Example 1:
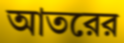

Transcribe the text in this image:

আতরের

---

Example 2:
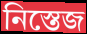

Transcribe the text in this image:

নিস্তেজ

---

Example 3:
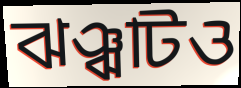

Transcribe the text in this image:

ঝঞ্ঝাটও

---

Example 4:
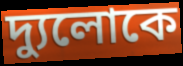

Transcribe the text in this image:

দ্যুলোকে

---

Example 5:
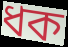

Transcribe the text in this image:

ধক